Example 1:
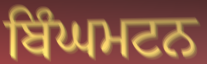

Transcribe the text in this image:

ਬਿੰਘਮਟਨ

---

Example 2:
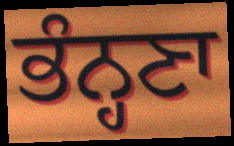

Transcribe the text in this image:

ਭੰਨ੍ਹਣਾ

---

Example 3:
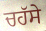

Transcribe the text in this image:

ਚਹੱਸੇ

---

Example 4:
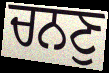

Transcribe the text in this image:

ਚਨਣੁ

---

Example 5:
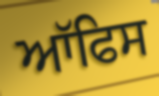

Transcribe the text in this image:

ਆੱਫਿਸ